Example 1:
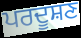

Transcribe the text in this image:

ਪਰਦੂਸ਼ਣ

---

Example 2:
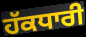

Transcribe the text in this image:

ਹੱਕਧਾਰੀ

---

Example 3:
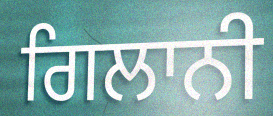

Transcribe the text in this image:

ਗਿਲਾਨੀ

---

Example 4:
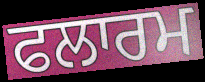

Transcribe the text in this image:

ਫਲਾਰਮ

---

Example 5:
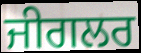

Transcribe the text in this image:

ਜੀਗਲਰ